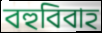
বহুবিবাহ